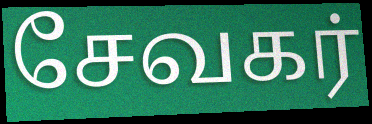
சேவகர்